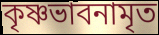
কৃষ্ণভাবনামৃত